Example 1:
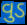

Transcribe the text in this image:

વુડ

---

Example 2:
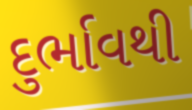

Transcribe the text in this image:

દુર્ભાવથી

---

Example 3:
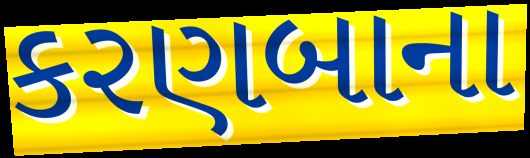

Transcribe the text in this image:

કરણબાના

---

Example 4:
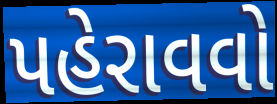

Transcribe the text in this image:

પહેરાવવો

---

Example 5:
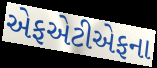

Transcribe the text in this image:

એફએટીએફના